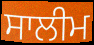
ਸਾਲੀਮ